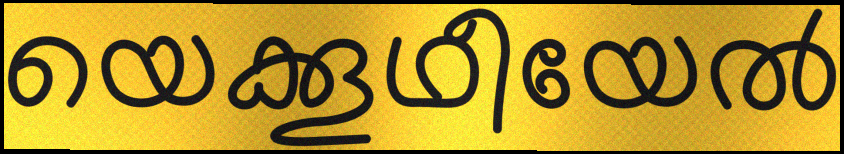
യെക്കൂഥീയേൽ